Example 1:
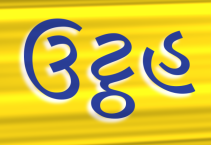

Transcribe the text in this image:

ઉટ્ઠહ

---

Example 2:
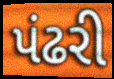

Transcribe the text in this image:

પંઢરી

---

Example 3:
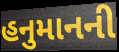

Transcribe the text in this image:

હનુમાનની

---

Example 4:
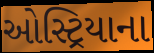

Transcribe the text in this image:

ઓસ્ટ્રિયાના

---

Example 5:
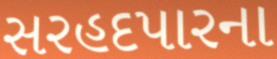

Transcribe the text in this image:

સરહદપારના